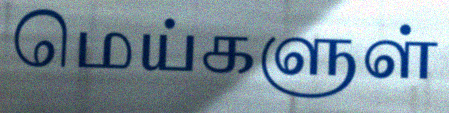
மெய்களுள்